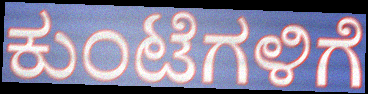
ಕುಂಟೆಗಳಿಗೆ